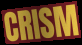
CRISM